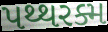
પથ્થરક્મ